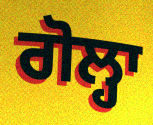
ਗੋਲ੍ਹਾ